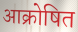
आक्रोषित